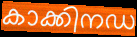
കാക്കിനഡ